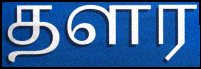
தளர